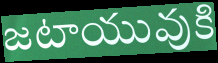
జటాయువుకి